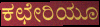
ಕಛೇರಿಯೂ